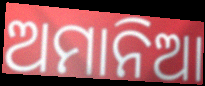
ଅମାନିଆ